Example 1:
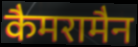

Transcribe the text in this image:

कैमरामैन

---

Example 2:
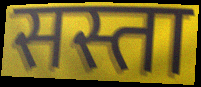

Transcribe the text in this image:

सस्ता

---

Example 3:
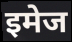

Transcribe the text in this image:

इमेज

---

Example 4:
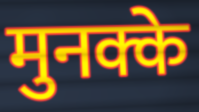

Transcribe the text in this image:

मुनक्के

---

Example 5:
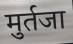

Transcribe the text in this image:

मुर्तजा